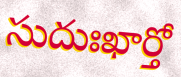
సుదుఃఖార్తో